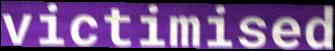
victimised